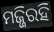
ମଜ୍ଜିରହି